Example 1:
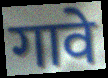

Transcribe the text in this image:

गावे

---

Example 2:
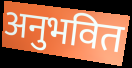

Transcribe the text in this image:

अनुभवित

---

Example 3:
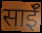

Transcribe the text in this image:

साईॅ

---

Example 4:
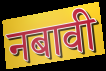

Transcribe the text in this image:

नबावी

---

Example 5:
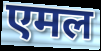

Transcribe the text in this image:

एमल